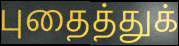
புதைத்துக்